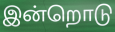
இன்றொடு